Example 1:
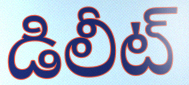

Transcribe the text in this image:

డిలీట్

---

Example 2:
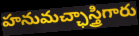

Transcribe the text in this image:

హనుమచ్ఛాస్త్రిగారు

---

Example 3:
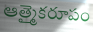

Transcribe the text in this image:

ఆత్మైకరూపం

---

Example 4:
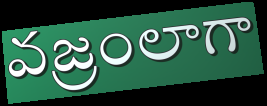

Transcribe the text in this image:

వజ్రంలాగా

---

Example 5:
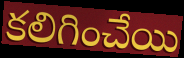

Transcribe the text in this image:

కలిగించేయి